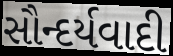
સૌન્દર્યવાદી